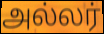
அல்லர்